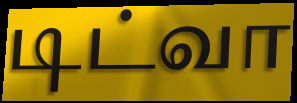
டிட்வா